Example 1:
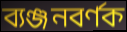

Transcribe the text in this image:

ব্যঞ্জনবৰ্ণক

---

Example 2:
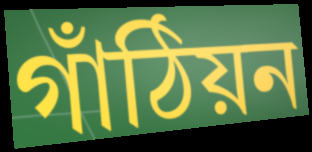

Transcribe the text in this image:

গাঁঠিয়ন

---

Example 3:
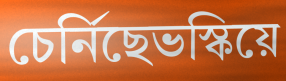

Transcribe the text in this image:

চেৰ্নিছেভস্কিয়ে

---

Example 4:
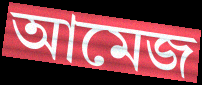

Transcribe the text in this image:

আমেজ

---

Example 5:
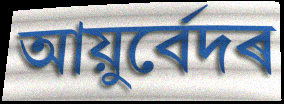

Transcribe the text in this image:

আয়ুৰ্বেদৰ